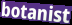
botanist